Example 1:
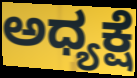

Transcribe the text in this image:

ಅಧ್ಯಕ್ಷೆ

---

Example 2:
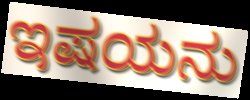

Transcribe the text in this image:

ಇಷಯನು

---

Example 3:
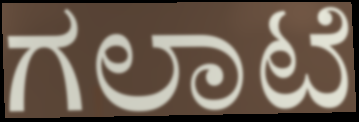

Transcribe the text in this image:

ಗಲಾಟೆ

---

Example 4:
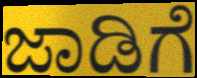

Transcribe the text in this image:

ಜಾಡಿಗೆ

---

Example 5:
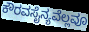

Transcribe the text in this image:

ಕೌರವಸೈನ್ಯವೆಲ್ಲವೂ